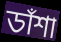
ডাঁশা